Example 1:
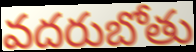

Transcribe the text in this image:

వదరుబోతు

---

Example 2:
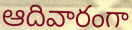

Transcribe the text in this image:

ఆదివారంగా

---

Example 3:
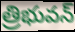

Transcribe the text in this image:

త్రిభువన్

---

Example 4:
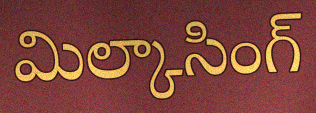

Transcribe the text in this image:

మిల్కాసింగ్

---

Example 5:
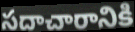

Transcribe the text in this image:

సదాచారానికి